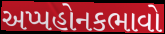
અપ્પહોનકભાવો